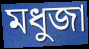
মধুজা